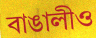
বাঙালীও